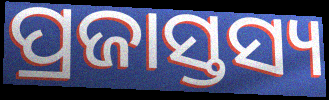
ପ୍ରଜାସ୍ତସ୍ୟ